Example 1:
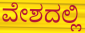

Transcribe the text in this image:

ವೇಶದಲ್ಲಿ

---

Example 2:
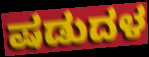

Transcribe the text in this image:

ಷಡುದಳ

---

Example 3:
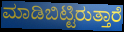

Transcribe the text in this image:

ಮಾಡಿಬಿಟ್ಟಿರುತ್ತಾರೆ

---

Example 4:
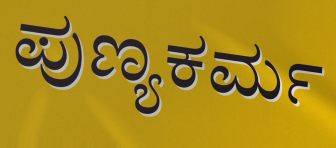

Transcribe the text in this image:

ಪುಣ್ಯಕರ್ಮ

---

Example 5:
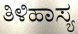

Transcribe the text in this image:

ತಿಳಿಹಾಸ್ಯ